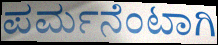
ಪರ್ಮನೆಂಟಾಗಿ